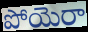
పోయెరా